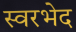
स्वरभेद